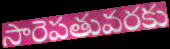
సారెపతువరకు